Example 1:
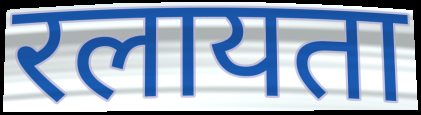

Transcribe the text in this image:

रलायता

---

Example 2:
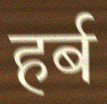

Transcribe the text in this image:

हर्ब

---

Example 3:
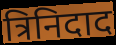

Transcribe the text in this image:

त्रिनिदाद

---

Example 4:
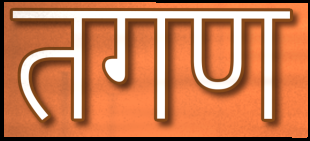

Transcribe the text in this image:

तगण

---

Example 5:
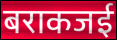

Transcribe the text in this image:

बराकजई